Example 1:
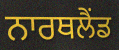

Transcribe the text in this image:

ਨਾਰਥਲੈਂਡ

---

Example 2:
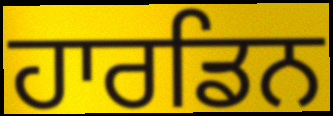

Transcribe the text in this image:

ਹਾਰਡਿਨ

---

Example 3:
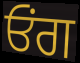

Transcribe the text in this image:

ਓਂਗ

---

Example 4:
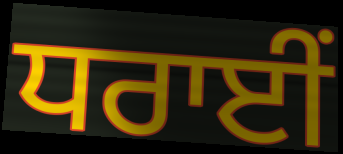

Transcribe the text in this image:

ਧਰਾਈਂ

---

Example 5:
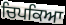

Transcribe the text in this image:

ਚਿਪਕਿਆ